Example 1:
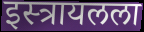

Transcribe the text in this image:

इस्त्रायलला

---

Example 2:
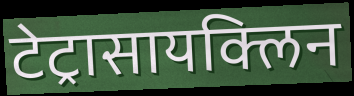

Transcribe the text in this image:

टेट्रासायक्लिन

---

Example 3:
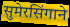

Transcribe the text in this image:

सुमेरसिंगाने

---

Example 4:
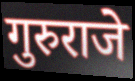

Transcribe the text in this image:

गुरुराजे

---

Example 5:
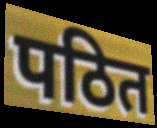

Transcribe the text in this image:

पठित